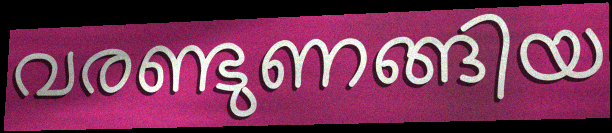
വരണ്ടുണങ്ങിയ